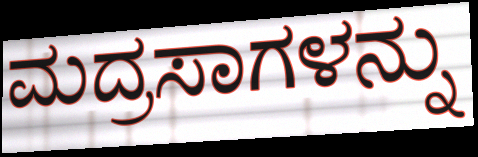
ಮದ್ರಸಾಗಳನ್ನು